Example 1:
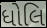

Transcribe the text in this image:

ધોલિ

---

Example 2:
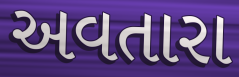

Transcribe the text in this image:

અવતારા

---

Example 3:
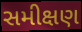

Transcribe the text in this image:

સમીક્ષણ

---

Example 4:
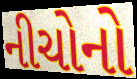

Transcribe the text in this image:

નીચોનો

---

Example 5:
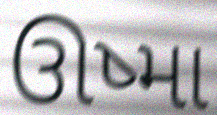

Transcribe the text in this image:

ઊષ્મા